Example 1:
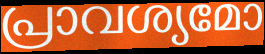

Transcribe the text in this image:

പ്രാവശ്യമോ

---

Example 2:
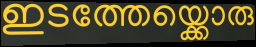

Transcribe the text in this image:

ഇടത്തേയ്ക്കൊരു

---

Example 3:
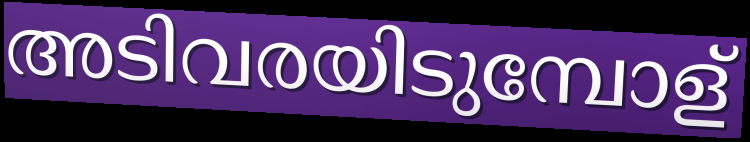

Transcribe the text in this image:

അടിവരയിടുമ്പോള്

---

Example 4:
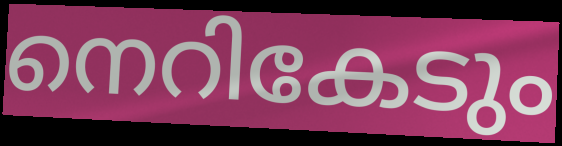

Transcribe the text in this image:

നെറികേടും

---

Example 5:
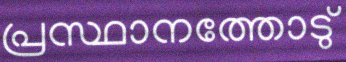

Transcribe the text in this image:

പ്രസ്ഥാനത്തോടു്